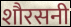
शौरसनी